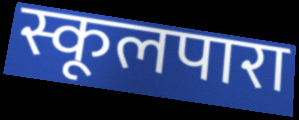
स्कूलपारा